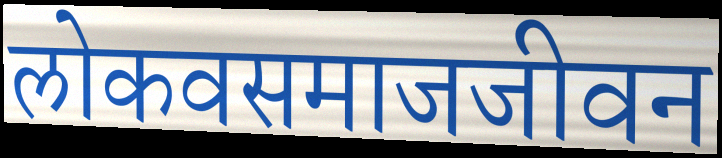
लोकवसमाजजीवन